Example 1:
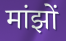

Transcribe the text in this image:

मांझों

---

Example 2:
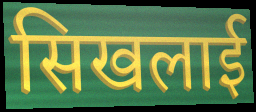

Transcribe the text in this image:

सिखलाई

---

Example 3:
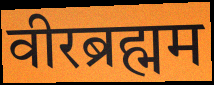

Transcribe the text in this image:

वीरब्रह्मम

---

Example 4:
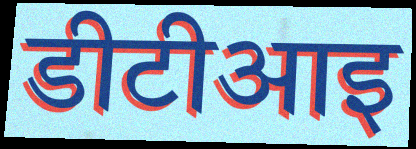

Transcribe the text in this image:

डीटीआइ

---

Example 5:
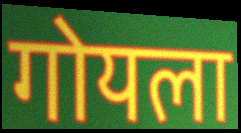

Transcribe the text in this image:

गोयला